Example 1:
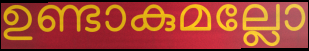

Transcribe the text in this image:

ഉണ്ടാകുമല്ലോ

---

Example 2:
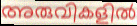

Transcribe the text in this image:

അരുവികളിൽ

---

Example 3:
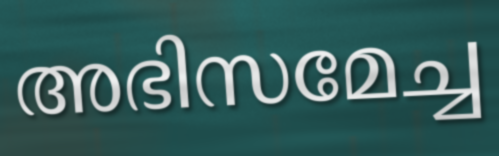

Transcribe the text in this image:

അഭിസമേച്ച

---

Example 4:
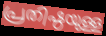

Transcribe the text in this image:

പ്രതിഷ്ഠയുള്ള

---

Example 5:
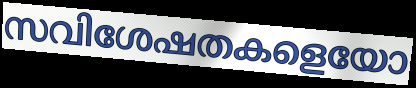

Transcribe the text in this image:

സവിശേഷതകളെയോ